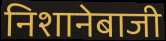
निशानेबाजी